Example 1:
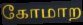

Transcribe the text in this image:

கோமாற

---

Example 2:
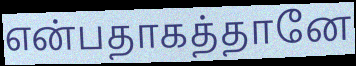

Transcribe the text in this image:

என்பதாகத்தானே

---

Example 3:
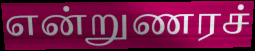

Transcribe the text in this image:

என்றுணரச்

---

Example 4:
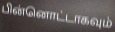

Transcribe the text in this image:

பின்னொட்டாகவும்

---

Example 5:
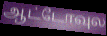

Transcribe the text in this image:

ஆட்டோவுல